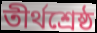
তীর্থশ্রেষ্ঠ